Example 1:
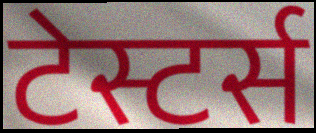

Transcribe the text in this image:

टेस्टर्स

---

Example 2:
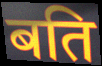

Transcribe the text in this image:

बति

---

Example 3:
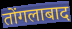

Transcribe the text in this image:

तोंगलाबाद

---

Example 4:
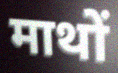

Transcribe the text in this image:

माथों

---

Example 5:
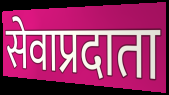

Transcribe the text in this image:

सेवाप्रदाता